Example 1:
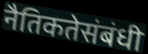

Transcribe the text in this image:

नैतिकतेसंबंधी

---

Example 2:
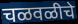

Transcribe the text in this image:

चळवळीचे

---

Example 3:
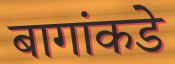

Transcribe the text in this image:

बागांकडे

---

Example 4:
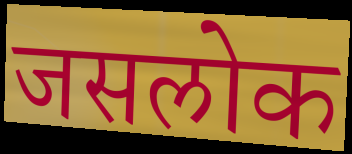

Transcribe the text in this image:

जसलोक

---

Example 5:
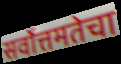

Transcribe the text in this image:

सर्वोत्तमतेचा